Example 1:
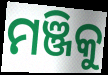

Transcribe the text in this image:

ମଞ୍ଜିକୁ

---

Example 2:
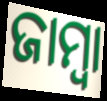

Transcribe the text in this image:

ଜାମ୍ବା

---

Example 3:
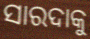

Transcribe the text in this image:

ସାରଦାକୁ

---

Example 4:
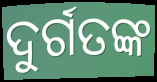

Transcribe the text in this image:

ଦୁର୍ଗତଙ୍କ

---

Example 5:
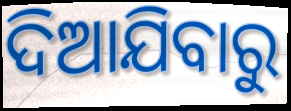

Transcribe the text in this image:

ଦିଆଯିବାରୁ